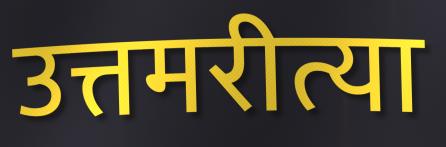
उत्तमरीत्या